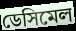
ডেসিমেল